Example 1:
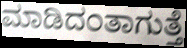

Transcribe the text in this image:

ಮಾಡಿದಂತಾಗುತ್ತೆ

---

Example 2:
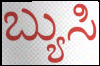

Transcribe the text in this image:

ಬ್ಯುಸಿ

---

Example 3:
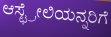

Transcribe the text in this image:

ಆಸ್ಟ್ರೇಲಿಯನ್ನರಿಗೆ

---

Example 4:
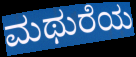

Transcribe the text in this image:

ಮಥುರೆಯ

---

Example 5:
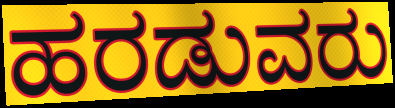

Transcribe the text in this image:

ಹರಡುವರು